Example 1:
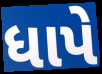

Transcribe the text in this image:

ધાપે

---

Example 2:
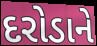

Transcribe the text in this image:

દરોડાને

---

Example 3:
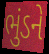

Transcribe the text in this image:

ભુંડને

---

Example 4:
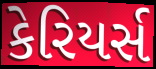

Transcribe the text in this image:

કેરિયર્સ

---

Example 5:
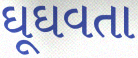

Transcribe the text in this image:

ઘૂઘવતા